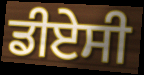
ਡੀਏਸੀ